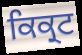
ਕਿਕ੍ਰਟ